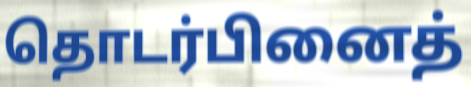
தொடர்பினைத்